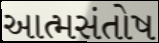
આત્મસંતોષ